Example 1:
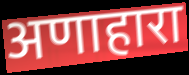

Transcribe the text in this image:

अणाहारा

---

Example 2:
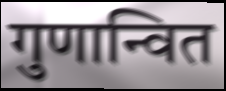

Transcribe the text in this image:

गुणान्वित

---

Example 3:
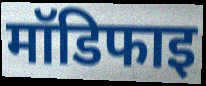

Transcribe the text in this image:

मॉडिफाइ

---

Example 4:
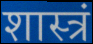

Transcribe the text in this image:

शास्त्रं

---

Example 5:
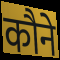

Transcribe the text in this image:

कौने